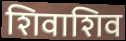
शिवाशिव